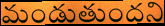
మండుతుందని